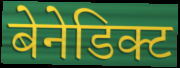
बेनेडिक्ट